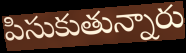
పిసుకుతున్నారు